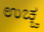
ಉಚ್ಚ